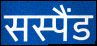
सस्पैंड